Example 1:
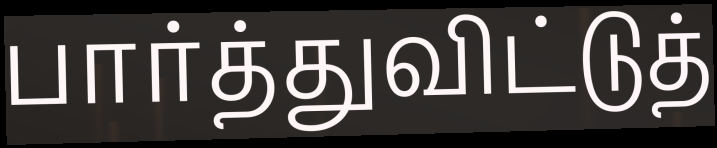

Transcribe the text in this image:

பார்த்துவிட்டுத்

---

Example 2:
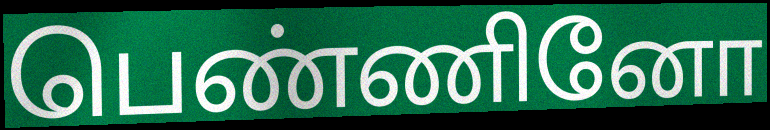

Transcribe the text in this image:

பெண்ணினோ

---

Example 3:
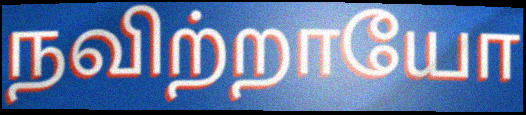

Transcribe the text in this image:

நவிற்றாயோ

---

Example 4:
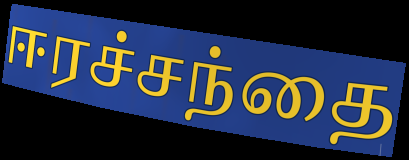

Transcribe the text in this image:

ஈரச்சந்தை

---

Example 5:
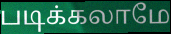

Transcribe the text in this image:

படிக்கலாமே